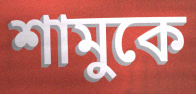
শামুকে